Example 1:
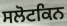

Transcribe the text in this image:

ਸਲੋਟਕਿਨ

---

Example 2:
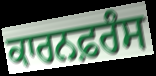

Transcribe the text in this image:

ਕਾਰਨਫ਼ਰੰਸ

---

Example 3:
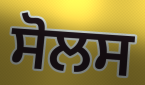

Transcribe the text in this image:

ਸੋਲਸ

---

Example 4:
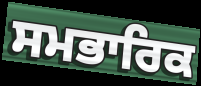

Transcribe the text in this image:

ਸਮਭਾਰਿਕ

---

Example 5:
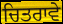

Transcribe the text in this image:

ਚਿਤਰਾਵੇ